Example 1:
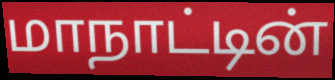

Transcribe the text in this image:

மாநாட்டின்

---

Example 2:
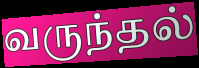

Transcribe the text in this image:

வருந்தல்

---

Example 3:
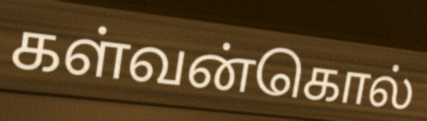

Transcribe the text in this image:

கள்வன்கொல்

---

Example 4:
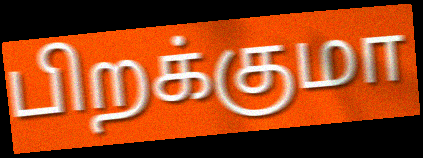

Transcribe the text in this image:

பிறக்குமா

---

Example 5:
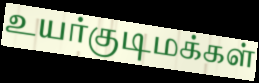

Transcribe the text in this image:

உயர்குடிமக்கள்